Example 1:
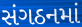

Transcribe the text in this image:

સંગઠનમાં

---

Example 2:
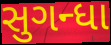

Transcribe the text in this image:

સુગન્ધા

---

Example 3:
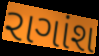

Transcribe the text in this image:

રાગાંશ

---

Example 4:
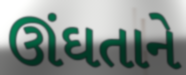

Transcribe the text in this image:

ઊંઘતાને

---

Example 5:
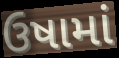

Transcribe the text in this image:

ઉષામાં